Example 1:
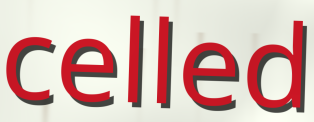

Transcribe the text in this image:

celled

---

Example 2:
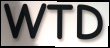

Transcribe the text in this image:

WTD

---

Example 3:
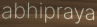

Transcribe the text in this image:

abhipraya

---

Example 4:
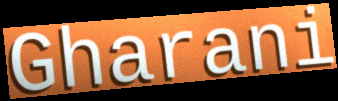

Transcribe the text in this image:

Gharani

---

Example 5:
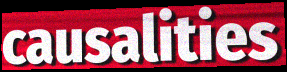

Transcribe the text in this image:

causalities